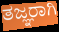
ತಜ್ಞರಾಗಿ